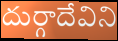
దుర్గాదేవిని